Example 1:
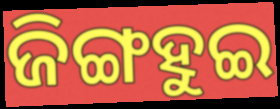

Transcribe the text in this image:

ଜିଙ୍ଗହୁଇ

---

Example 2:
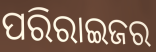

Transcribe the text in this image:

ପରିରାଇଜର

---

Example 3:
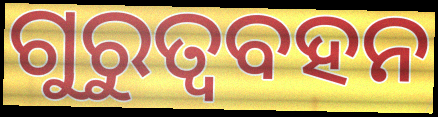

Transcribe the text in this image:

ଗୁରୁତ୍ୱବହନ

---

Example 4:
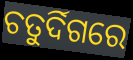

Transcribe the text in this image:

ଚତୁର୍ଦିଗରେ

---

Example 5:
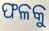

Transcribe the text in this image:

ଫଳକୁ